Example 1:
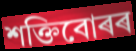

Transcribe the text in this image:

শক্তিবোৰৰ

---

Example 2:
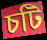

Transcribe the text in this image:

চটি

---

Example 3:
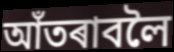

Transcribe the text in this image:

আঁতৰাবলৈ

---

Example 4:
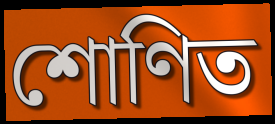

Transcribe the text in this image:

শোণিত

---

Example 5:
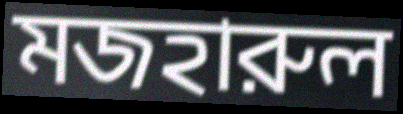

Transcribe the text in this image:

মজহাৰুল